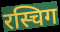
रस्चिग